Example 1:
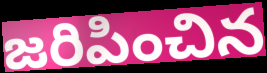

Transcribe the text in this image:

జరిపించిన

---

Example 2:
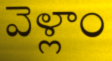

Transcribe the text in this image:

వెళ్లాం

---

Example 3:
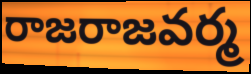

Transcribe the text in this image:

రాజరాజవర్మ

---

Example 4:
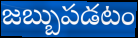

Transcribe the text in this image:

జబ్బుపడటం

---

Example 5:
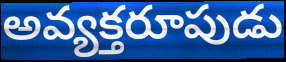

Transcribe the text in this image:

అవ్యక్తరూపుడు